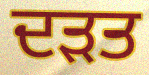
ਦੜਤ